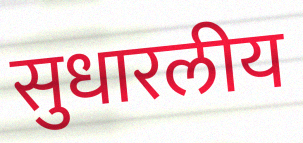
सुधारलीय